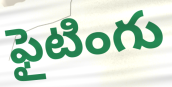
ఫైటింగు